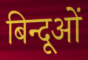
बिन्दूओं